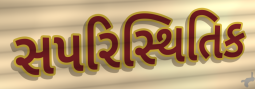
સપરિસ્થિતિક